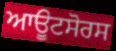
ਆਊਟਸੋਰਸ